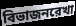
বিভাজনরেখা